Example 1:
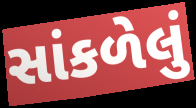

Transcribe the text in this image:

સાંકળેલું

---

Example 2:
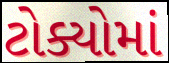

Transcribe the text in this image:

ટોક્યોમાં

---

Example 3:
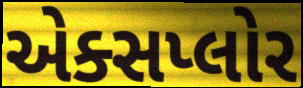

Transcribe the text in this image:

એક્સપ્લોર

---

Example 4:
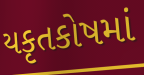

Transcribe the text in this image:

યકૃતકોષમાં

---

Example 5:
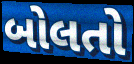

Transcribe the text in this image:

બોલતો